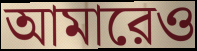
আমারেও